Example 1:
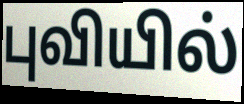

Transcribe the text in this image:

புவியில்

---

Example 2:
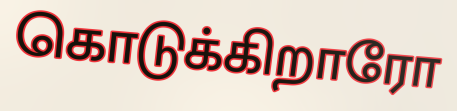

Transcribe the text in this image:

கொடுக்கிறாரோ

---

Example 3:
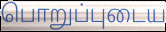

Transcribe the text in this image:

பொறுப்புடைய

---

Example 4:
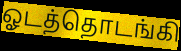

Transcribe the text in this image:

ஓடத்தொடங்கி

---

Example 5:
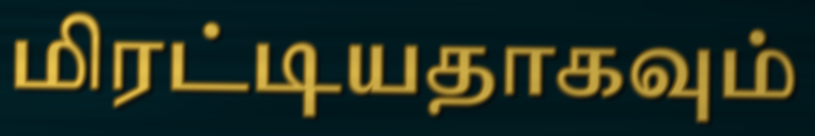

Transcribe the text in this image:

மிரட்டியதாகவும்